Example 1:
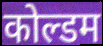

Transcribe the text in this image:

कोल्डम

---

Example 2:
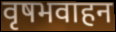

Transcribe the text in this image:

वृषभवाहन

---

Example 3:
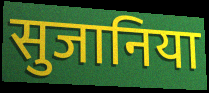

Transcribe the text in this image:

सुजानिया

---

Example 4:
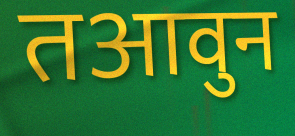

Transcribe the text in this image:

तआवुन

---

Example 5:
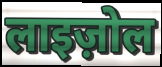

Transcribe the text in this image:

लाइज़ोल